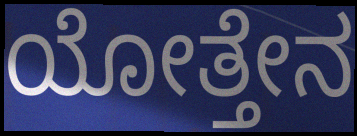
ಯೋತ್ತೇನ